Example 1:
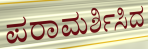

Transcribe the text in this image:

ಪರಾಮರ್ಶಿಸಿದ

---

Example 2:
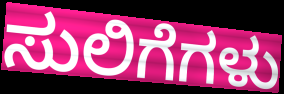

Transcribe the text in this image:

ಸುಲಿಗೆಗಳು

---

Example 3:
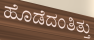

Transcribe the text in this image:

ಹೊಡೆದಂತಿತ್ತು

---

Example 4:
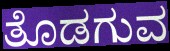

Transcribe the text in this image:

ತೊಡಗುವ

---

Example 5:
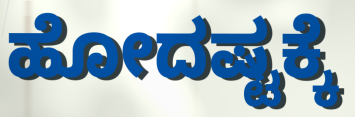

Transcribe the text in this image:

ಹೋದಷ್ಟಕ್ಕೆ